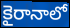
కైరానాలో